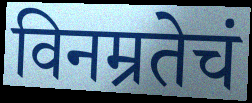
विनम्रतेचं